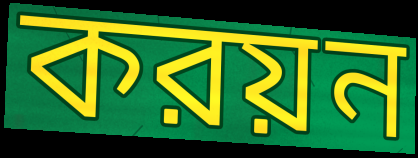
করয়ন